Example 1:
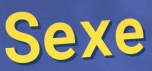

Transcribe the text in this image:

Sexe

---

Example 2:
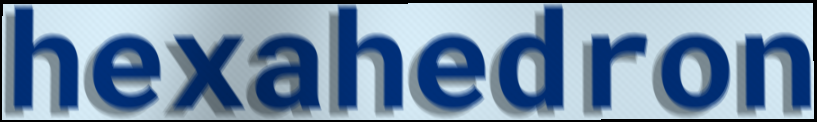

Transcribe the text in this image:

hexahedron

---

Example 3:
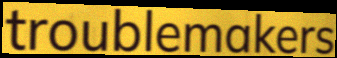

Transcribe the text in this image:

troublemakers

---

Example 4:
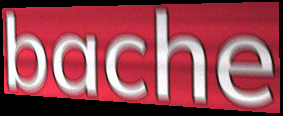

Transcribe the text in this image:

bache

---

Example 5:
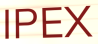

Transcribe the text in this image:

IPEX